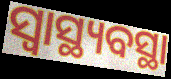
ସ୍ଵାସ୍ଥ୍ୟବସ୍ଥା